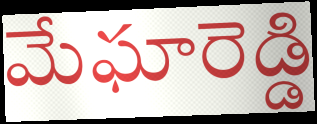
మేఘారెడ్డి